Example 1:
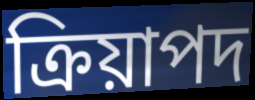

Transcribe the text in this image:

ক্রিয়াপদ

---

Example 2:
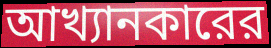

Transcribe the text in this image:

আখ্যানকারের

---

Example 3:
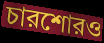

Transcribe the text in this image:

চারশোরও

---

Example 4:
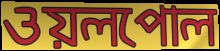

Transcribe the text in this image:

ওয়লপোল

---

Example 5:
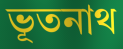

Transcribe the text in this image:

ভূতনাথ